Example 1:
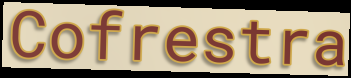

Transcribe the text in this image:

Cofrestra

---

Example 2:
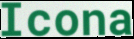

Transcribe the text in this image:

Icona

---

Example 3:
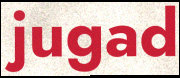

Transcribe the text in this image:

jugad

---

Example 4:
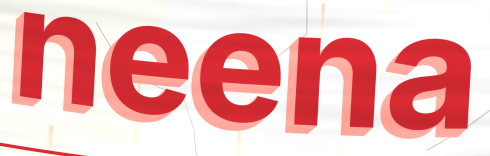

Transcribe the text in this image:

neena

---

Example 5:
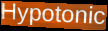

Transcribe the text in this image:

Hypotonic